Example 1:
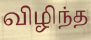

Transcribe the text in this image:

விழிந்த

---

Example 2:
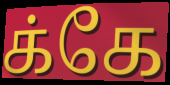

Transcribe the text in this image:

க்கே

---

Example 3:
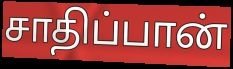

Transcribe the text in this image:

சாதிப்பான்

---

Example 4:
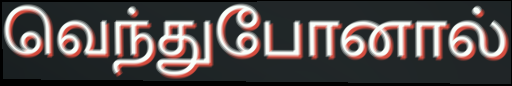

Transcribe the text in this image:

வெந்துபோனால்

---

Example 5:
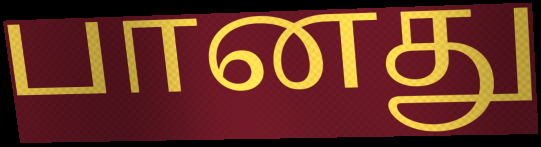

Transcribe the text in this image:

பானது